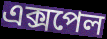
এক্সপেল